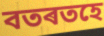
বতৰতহে